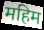
महिम